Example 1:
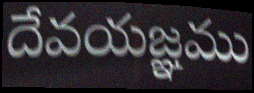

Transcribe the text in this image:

దేవయజ్ఞము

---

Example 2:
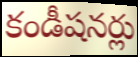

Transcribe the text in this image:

కండీషనర్లు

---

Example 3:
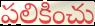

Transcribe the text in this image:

పలికించు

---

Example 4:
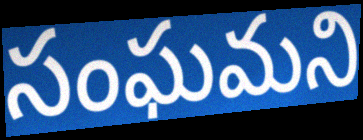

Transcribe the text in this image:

సంఘమని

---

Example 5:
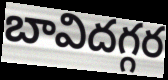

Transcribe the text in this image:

బావిదగ్గర